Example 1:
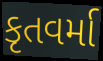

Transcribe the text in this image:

કૃતવર્મા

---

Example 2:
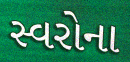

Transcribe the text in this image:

સ્વરોના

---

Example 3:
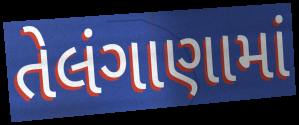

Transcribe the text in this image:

તેલંગાણામાં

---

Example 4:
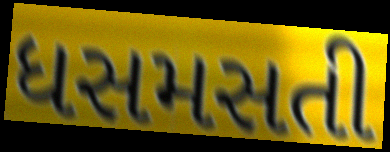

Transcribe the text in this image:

ધસમસતી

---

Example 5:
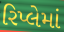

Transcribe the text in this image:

રિપ્લેમાં